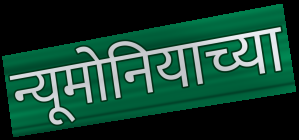
न्यूमोनियाच्या